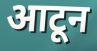
आटून